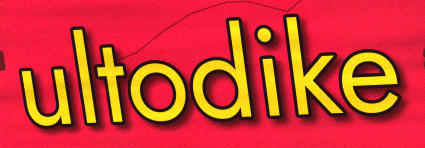
ultodike